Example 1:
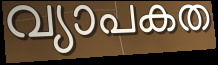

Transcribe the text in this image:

വ്യാപകത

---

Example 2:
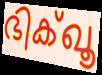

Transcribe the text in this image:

ഭിക്ഖൂ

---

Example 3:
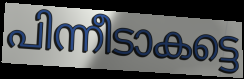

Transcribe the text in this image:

പിന്നീടാകട്ടെ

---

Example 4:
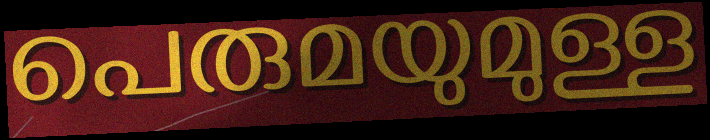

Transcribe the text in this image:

പെരുമയുമുള്ള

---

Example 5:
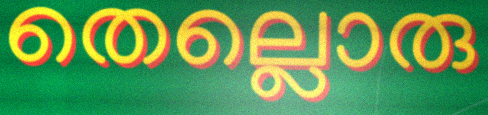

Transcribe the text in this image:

തെല്ലൊരു